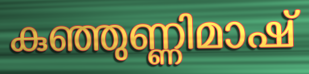
കുഞ്ഞുണ്ണിമാഷ്